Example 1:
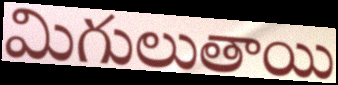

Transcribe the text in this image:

మిగులుతాయి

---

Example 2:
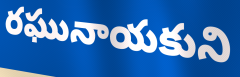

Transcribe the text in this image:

రఘునాయకుని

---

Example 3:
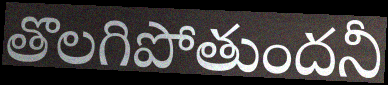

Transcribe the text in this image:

తొలగిపోతుందనీ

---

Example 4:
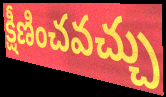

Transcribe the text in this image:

క్షీణించవచ్చు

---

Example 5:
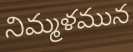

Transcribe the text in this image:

నిమ్మళమున